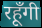
रहूँगी